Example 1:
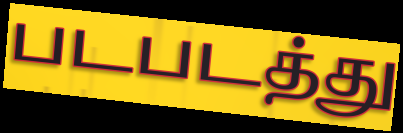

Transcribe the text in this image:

படபடத்து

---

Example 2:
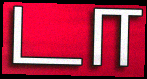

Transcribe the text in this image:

டா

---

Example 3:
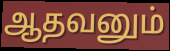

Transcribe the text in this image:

ஆதவனும்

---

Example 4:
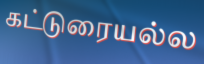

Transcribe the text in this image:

கட்டுரையல்ல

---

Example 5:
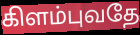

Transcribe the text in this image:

கிளம்புவதே